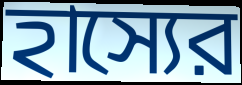
হাস্যের